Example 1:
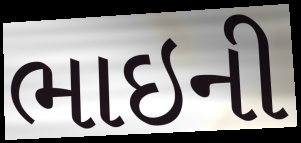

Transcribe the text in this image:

ભાઇની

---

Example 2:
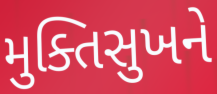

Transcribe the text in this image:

મુક્તિસુખને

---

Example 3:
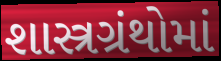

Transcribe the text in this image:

શાસ્ત્રગ્રંથોમાં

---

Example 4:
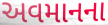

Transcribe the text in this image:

અવમાનના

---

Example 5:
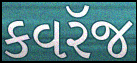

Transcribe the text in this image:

કવરૅજ